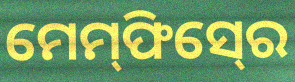
ମେମ୍‍ଫିସ୍‍ରେ